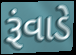
રૂંવાડે